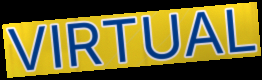
VIRTUAL